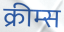
क्रीम्‍स